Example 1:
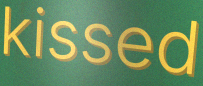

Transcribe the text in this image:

kissed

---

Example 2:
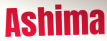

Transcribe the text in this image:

Ashima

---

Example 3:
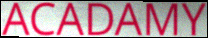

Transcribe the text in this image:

ACADAMY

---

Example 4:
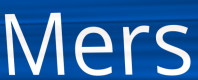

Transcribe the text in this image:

Mers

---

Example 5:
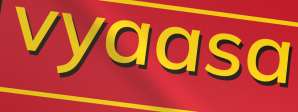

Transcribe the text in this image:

vyaasa